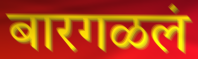
बारगळलं